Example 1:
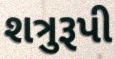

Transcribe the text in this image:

શત્રુરૂપી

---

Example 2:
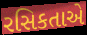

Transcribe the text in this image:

રસિકતાએ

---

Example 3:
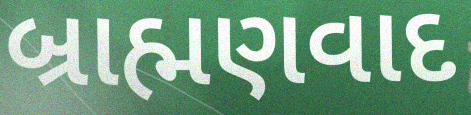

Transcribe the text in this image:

બ્રાહ્મણવાદ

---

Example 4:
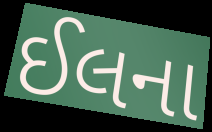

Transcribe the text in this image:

ઈલના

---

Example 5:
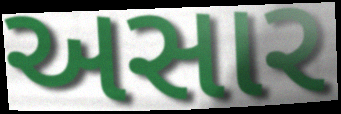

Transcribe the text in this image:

અસાર